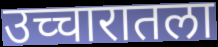
उच्चारातला